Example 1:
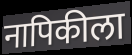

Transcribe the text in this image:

नापिकीला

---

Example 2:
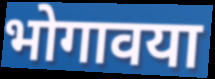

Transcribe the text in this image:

भोगावया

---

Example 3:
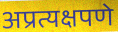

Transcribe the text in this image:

अप्रत्यक्षपणे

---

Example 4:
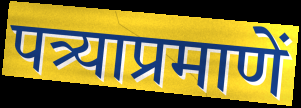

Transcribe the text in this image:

पत्र्याप्रमाणें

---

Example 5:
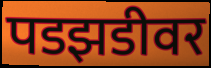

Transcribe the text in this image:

पडझडीवर